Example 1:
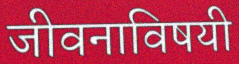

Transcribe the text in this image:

जीवनाविषयी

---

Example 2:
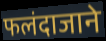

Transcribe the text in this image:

फलंदाजाने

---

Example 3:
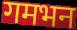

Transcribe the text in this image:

गमभन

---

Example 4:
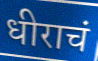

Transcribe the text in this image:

धीराचं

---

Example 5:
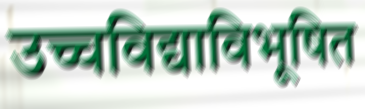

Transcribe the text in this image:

उच्चविद्याविभूषित